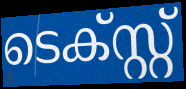
ടെക്സ്റ്റ്